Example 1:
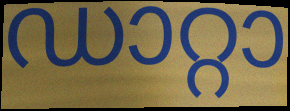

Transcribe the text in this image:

ഡാറ്റാ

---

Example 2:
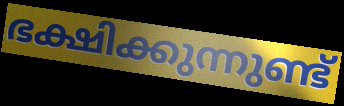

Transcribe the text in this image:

ഭക്ഷിക്കുന്നുണ്ട്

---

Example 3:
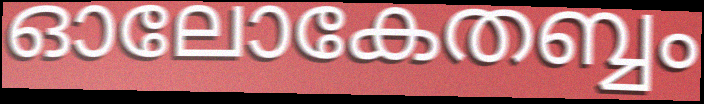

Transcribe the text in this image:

ഓലോകേതബ്ബം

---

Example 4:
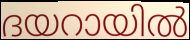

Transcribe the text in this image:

ദയറായിൽ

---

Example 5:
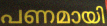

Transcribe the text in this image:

പണമായി